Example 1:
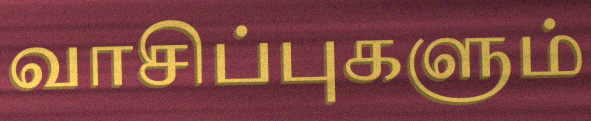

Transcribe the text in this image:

வாசிப்புகளும்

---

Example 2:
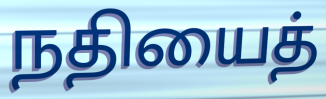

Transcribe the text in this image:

நதியைத்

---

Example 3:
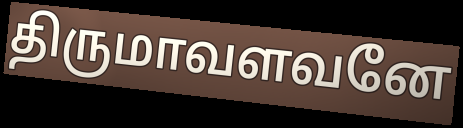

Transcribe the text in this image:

திருமாவளவனே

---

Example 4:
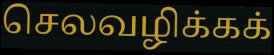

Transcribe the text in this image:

செலவழிக்கக்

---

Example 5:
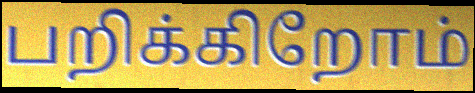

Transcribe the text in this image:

பறிக்கிறோம்